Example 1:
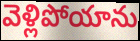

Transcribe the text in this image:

వెళ్లిపోయాను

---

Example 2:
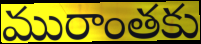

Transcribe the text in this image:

మురాంతకు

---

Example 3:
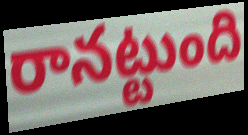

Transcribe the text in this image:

రానట్టుంది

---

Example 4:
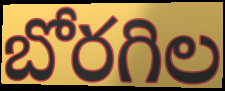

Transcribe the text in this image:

బోరగిల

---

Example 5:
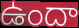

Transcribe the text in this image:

ఉందా